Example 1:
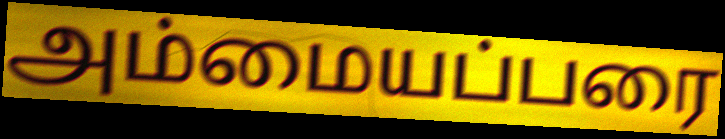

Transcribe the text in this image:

அம்மையப்பரை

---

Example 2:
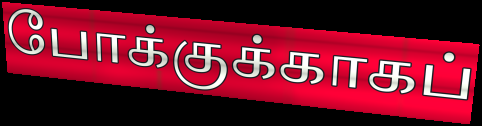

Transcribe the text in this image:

போக்குக்காகப்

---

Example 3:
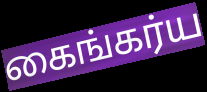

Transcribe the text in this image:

கைங்கர்ய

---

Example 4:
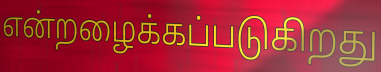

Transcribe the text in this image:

என்றழைக்கப்படுகிறது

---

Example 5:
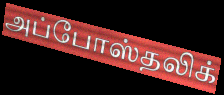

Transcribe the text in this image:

அப்போஸ்தலிக்